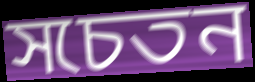
সচেতন